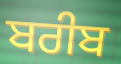
ਬਰੀਬ